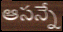
ఆసన్నే